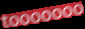
tooooooo